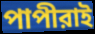
পাপীরাই